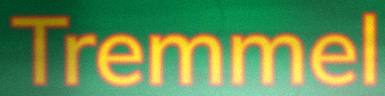
Tremmel